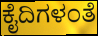
ಕೈದಿಗಳಂತೆ